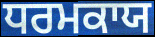
ਧਰਮਕਾਯ